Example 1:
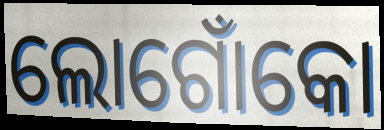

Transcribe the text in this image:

ଲୋଗୋଁକୋ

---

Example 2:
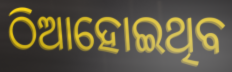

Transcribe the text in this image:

ଠିଆହୋଇଥିବ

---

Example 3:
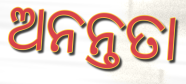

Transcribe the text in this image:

ଅନନ୍ତତା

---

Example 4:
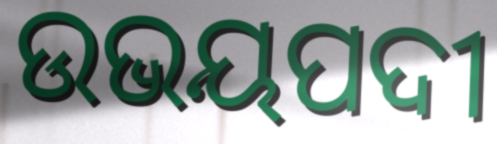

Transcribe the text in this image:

ଉଭୟପଦୀ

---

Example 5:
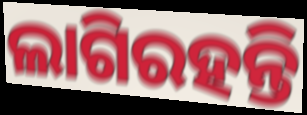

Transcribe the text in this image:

ଲାଗିରହନ୍ତି